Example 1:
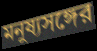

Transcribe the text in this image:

মনুষ্যসঙ্গের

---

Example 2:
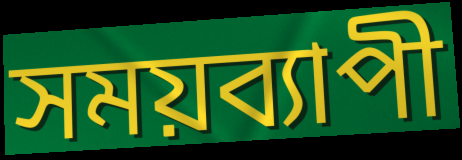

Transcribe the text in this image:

সময়ব্যাপী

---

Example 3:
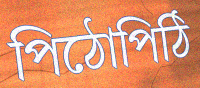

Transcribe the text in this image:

পিঠোপিঠি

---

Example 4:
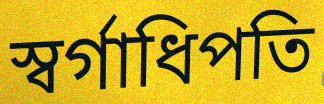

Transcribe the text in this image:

স্বর্গাধিপতি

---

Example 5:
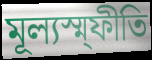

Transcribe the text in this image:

মূল্যস্ম্ফীতি